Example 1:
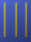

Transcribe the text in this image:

Ill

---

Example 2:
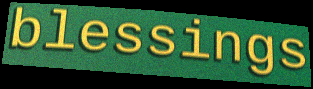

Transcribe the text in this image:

blessings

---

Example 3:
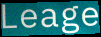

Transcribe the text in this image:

Leage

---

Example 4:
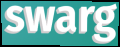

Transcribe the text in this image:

swarg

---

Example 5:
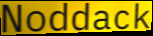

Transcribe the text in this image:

Noddack